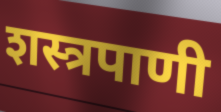
शस्त्रपाणी